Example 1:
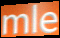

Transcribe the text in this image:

mle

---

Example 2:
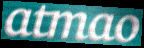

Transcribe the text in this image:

atmao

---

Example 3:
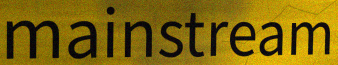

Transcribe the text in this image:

mainstream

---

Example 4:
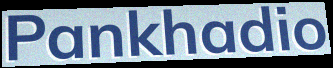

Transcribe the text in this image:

Pankhadio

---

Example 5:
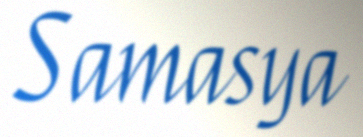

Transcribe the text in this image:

Samasya